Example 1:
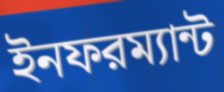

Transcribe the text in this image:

ইনফরম্যান্ট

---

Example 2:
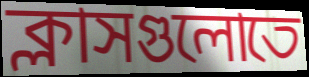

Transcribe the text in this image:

ক্লাসগুলোতে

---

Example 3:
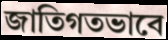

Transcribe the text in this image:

জাতিগতভাবে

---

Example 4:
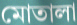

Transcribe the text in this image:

মোতালা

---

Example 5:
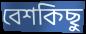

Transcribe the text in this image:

বেশকিছু